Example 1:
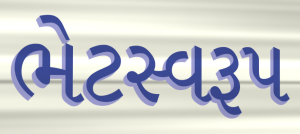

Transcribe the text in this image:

ભેટસ્વરૂપ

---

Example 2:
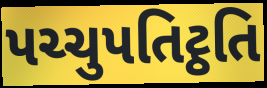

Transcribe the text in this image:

પચ્ચુપતિટ્ઠતિ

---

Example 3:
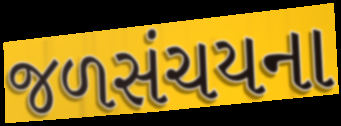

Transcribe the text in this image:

જળસંચયના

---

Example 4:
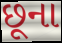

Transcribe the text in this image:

છૂના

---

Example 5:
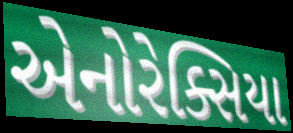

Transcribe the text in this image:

એનોરેક્સિયા